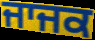
ਜਾਜਕ